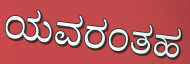
ಯವರಂತಹ